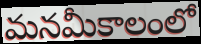
మనమీకాలంలో